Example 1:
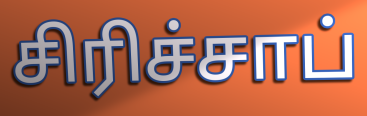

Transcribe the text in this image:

சிரிச்சாப்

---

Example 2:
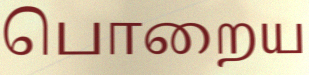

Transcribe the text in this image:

பொறைய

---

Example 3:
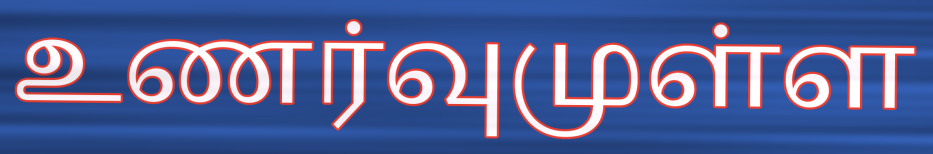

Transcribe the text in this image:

உணர்வுமுள்ள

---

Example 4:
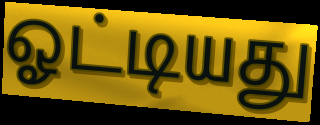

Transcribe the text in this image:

ஓட்டியது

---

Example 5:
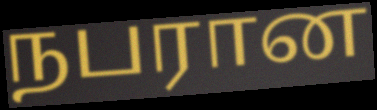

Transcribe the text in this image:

நபரான